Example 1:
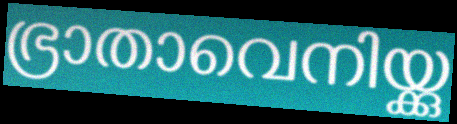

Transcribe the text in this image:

ഭ്രാതാവെനിയ്ക്കു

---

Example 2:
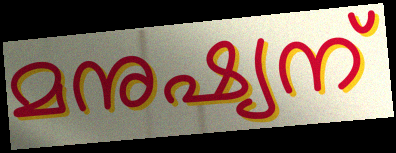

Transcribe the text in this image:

മനുഷ്യന്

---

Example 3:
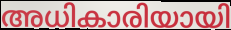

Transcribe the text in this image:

അധികാരിയായി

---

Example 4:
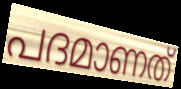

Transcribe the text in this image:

പദമാണത്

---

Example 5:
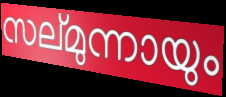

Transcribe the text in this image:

സല്മുന്നായും